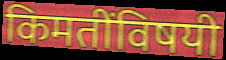
किमतींविषयी